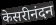
केसरीनंदन